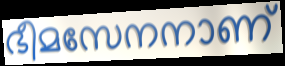
ഭീമസേനനാണ്